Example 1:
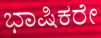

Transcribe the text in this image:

ಭಾಷಿಕರೇ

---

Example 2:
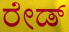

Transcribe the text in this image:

ರೇಡ್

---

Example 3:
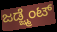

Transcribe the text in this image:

ಜಡ್ಜ್ಮೆಂಟ್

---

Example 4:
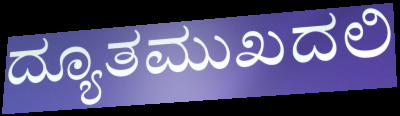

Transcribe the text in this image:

ದ್ಯೂತಮುಖದಲಿ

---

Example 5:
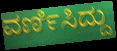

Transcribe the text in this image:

ವರ್ಣಿಸಿದ್ದು